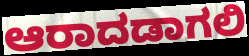
ಆರಾದಡಾಗಲಿ